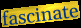
fascinate